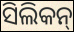
ସିଲିକନ୍